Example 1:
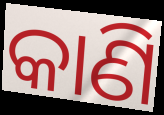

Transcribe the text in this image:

କାଣି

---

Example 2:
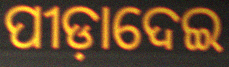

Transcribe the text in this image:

ପୀଡ଼ାଦେଇ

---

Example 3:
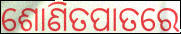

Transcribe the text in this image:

ଶୋଣିତପାତରେ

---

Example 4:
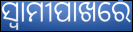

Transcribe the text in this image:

ସ୍ୱାମୀପାଖରେ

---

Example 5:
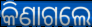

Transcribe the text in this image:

କିଣାଗଲେ